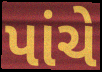
પાંચે